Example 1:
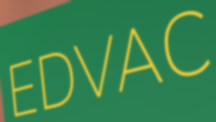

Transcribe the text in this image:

EDVAC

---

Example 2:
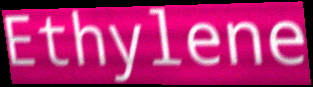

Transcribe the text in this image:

Ethylene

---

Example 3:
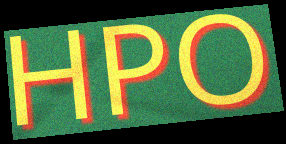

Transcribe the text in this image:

HPO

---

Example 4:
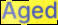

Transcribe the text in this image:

Aged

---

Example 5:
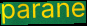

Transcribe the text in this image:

parane